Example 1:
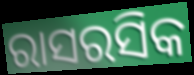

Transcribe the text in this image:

ରାସରସିକ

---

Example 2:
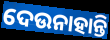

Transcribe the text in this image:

ଦେଉନାହାନ୍ତି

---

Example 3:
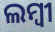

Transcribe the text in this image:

ଲମ୍ବୀ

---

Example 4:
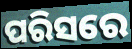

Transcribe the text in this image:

ପରିସରେ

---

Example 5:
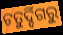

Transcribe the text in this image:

ଚତୁର୍ଦ୍ଦିଗରୁ